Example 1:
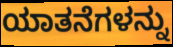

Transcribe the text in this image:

ಯಾತನೆಗಳನ್ನು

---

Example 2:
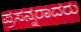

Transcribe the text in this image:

ಪ್ರಸನ್ನರಾದರು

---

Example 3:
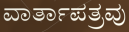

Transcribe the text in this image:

ವಾರ್ತಾಪತ್ರವು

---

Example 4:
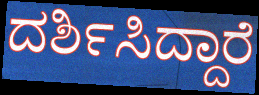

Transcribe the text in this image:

ದರ್ಶಿಸಿದ್ದಾರೆ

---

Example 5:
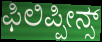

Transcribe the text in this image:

ಫಿಲಿಪ್ಪೀನ್ಸ್